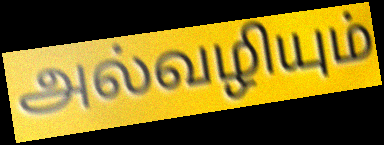
அல்வழியும்